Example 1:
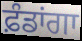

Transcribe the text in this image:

ਫ਼ੰਡਾਂਗਾ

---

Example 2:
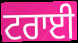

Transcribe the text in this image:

ਟਰਾਈ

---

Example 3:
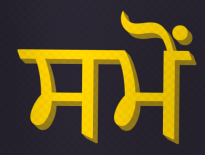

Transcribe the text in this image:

ਸਮੋਂ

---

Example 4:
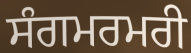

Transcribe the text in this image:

ਸੰਗਮਰਮਰੀ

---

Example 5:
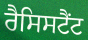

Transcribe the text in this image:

ਰੈਸਿਸਟੈਂਟ